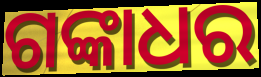
ଗଙ୍କାଧର